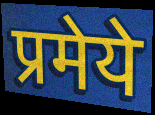
प्रमेये